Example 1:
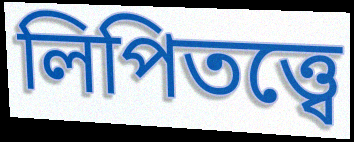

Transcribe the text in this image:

লিপিতত্ত্বে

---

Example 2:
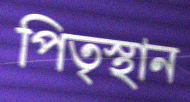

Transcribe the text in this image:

পিতৃস্থান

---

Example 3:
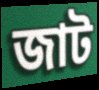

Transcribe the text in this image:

জাট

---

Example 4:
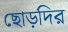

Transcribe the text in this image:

ছোড়দির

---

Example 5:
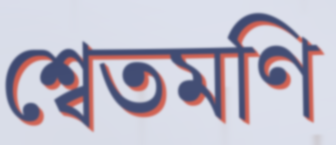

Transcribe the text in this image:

শ্বেতমণি